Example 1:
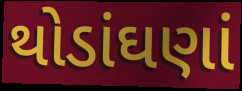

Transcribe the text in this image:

થોડાંઘણાં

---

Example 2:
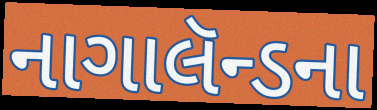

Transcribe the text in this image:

નાગાલૅન્ડના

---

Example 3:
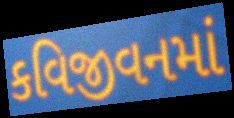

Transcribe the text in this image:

કવિજીવનમાં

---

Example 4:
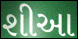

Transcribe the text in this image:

શીઆ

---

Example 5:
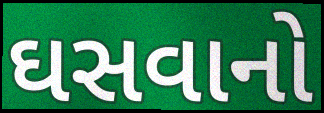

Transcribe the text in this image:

ઘસવાનો